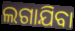
ଲଗାଯିବା